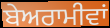
ਬੇਅਰਾਮੀਵਾਂ